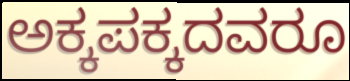
ಅಕ್ಕಪಕ್ಕದವರೂ